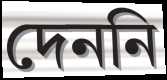
দেননি